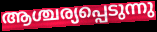
ആശ്ചര്യപ്പെടുന്നു